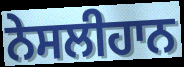
ਨੇਸਲੀਹਾਨ